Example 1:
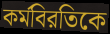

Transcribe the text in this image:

কর্মবিরতিকে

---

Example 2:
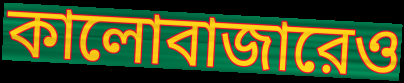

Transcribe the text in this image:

কালোবাজারেও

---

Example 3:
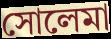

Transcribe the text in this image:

সোলেমা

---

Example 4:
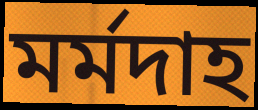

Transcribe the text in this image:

মর্মদাহ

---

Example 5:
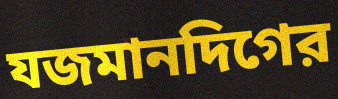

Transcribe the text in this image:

যজমানদিগের